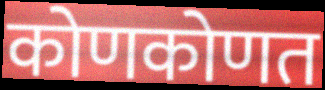
कोणकोणत